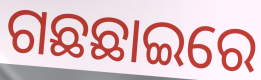
ଗଛଛାଇରେ